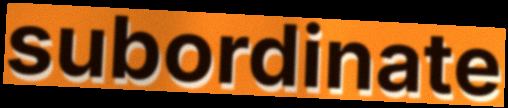
subordinate